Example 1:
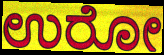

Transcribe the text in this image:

ಉರೋ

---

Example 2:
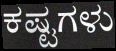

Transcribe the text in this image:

ಕಷ್ಟಗಳು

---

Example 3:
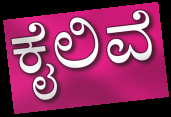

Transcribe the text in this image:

ಕೈಲಿವೆ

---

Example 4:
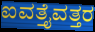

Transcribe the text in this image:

ಐವತ್ತೈವತ್ತರ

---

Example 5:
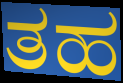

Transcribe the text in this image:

ತಹ